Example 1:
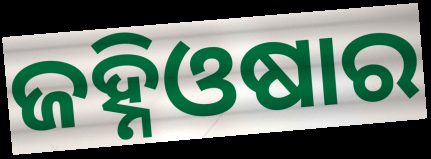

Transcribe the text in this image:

ଜହ୍ନିଓଷାର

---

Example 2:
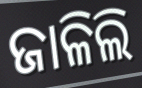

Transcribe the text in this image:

ଜାଳିଲି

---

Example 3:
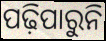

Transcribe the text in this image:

ପଢ଼ିପାରୁନି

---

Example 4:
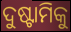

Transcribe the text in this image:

ଦୁଷ୍ଟାମିକୁ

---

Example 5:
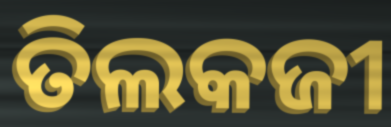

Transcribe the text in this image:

ତିଲକଜୀ